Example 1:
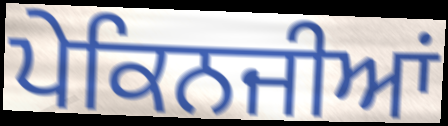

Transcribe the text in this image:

ਪੇਕਿਨਜੀਆਂ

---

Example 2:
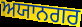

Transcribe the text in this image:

ਅਯਾਨਗਰ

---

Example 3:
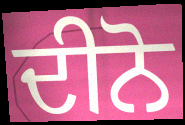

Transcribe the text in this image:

ਦੀਨੋ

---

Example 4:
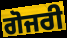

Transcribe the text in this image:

ਗੋਜਰੀ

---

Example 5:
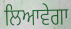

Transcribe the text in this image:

ਲਿਆਵੇਗਾ